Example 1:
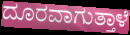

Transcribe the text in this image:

ದೂರವಾಗುತ್ತಾಳೆ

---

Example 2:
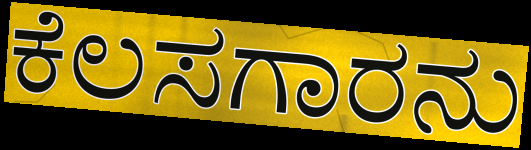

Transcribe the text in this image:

ಕೆಲಸಗಾರನು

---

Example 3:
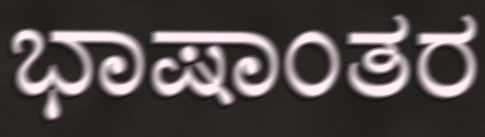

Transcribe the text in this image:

ಭಾಷಾಂತರ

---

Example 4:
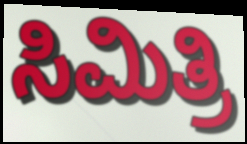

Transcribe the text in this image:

ಸಿಮಿತ್ರಿ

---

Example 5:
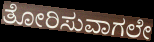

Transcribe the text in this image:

ತೋರಿಸುವಾಗಲೇ